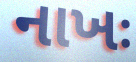
નાખઃ